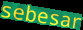
sebesar